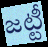
జట్టీ